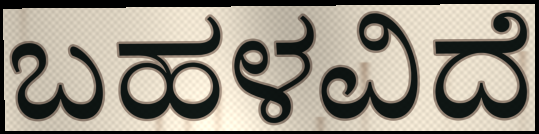
ಬಹಳವಿದೆ